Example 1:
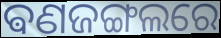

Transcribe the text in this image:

ଵଣଜଙ୍ଗଲରେ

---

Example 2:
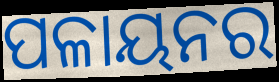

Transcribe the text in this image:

ପଳାୟନର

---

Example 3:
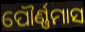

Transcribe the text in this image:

ପୌର୍ଣ୍ଣମାସ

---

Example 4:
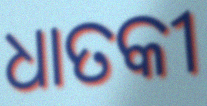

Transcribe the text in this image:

ଧାତକୀ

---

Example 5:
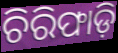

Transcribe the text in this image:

ଚିରିଫାଡ଼ି